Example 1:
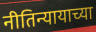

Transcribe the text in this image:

नीतिन्यायाच्या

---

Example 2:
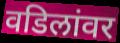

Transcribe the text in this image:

वडिलांवर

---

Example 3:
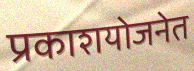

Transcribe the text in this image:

प्रकाशयोजनेत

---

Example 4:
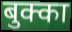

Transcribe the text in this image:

बुक्का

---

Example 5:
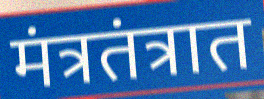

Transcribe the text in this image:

मंत्रतंत्रात